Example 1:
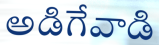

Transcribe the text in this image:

అడిగేవాడి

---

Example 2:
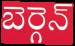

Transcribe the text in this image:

బెర్గెన్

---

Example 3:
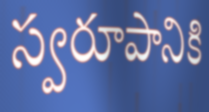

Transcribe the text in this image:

స్వరూపానికి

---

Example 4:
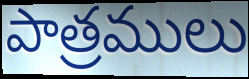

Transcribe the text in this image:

పాత్రములు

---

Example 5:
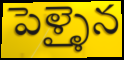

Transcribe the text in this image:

పెళ్ళైన